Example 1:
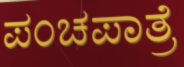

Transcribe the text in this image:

ಪಂಚಪಾತ್ರೆ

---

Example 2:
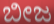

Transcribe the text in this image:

ಬೀಜ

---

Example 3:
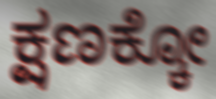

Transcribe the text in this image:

ಕ್ಷಣಕ್ಕೋ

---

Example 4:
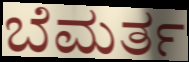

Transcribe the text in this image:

ಬೆಮರ್ತ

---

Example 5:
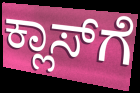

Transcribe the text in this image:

ಕ್ಲಾಸ್‍ಗೆ